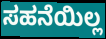
ಸಹನೆಯಿಲ್ಲ